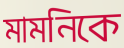
মামনিকে